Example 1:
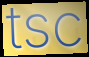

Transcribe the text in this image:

tsc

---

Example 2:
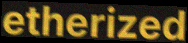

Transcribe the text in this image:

etherized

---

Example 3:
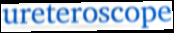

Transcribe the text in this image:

ureteroscope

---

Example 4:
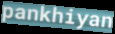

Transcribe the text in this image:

pankhiyan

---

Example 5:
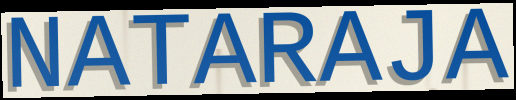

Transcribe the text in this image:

NATARAJA